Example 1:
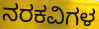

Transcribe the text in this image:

ನರಕವಿಗಳ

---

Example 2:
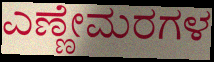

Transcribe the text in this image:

ಎಣ್ಣೇಮರಗಳ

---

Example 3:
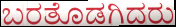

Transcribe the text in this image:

ಬರತೊಡಗಿದರು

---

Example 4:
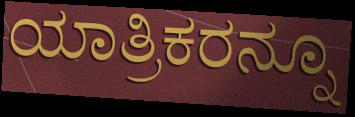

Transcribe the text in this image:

ಯಾತ್ರಿಕರನ್ನೂ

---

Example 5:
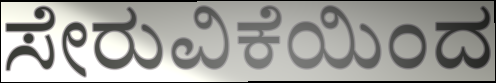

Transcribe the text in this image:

ಸೇರುವಿಕೆಯಿಂದ